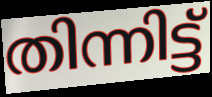
തിന്നിട്ട്